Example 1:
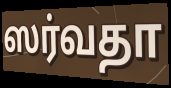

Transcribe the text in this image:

ஸர்வதா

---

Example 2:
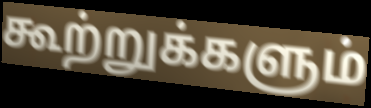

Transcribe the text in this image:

கூற்றுக்களும்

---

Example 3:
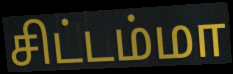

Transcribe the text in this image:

சிட்டம்மா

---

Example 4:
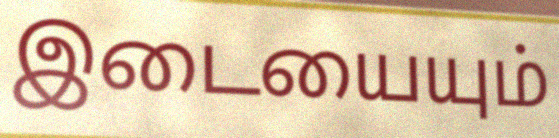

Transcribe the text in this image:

இடையையும்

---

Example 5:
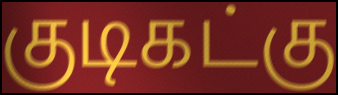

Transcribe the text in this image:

குடிகட்கு